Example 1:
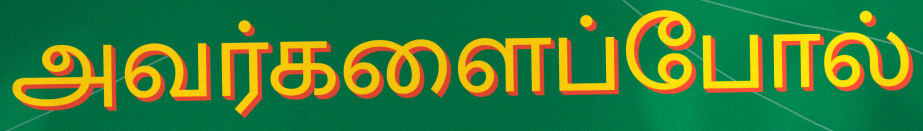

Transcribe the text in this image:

அவர்களைப்போல்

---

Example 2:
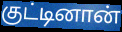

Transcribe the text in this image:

குட்டினான்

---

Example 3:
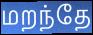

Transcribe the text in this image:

மறந்தே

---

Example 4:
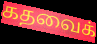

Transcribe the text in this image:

கதவைக்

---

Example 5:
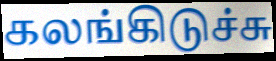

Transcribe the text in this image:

கலங்கிடுச்சு